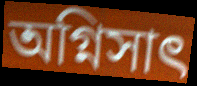
অগ্নিসাৎ